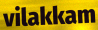
vilakkam